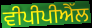
ਵੀਪੀਪੀਐੱਲ